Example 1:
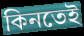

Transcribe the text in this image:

কিনতেই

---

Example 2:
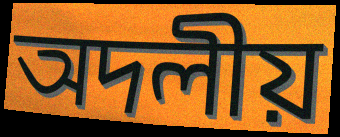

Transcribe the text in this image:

অদলীয়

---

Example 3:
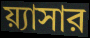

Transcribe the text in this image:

য়্যাসার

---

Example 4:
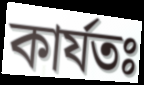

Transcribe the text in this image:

কার্যতঃ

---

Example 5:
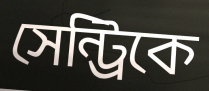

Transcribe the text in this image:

সেন্ট্রিকে